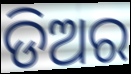
ଡିଅର